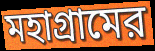
মহাগ্রামের